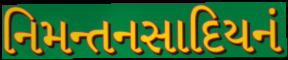
નિમન્તનસાદિયનં